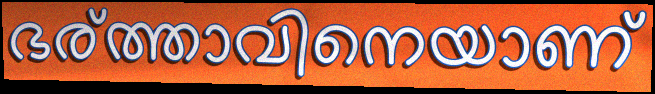
ഭര്ത്താവിനെയാണ്